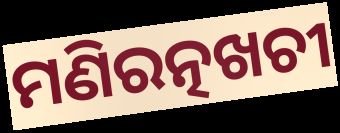
ମଣିରତ୍ନଖଚୀ